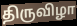
திருவிழா